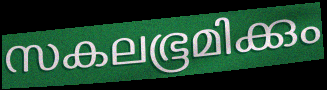
സകലഭൂമിക്കും